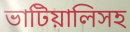
ভাটিয়ালিসহ